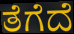
ತೆಗೆದೆ